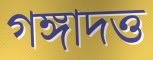
গঙ্গাদত্ত